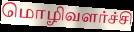
மொழிவளர்ச்சி